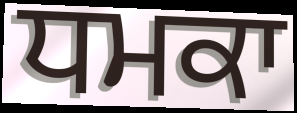
ਧਮਕਾ